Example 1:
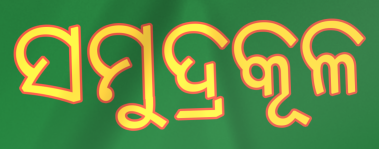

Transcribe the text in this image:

ସମୁଦ୍ରକୂଳ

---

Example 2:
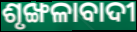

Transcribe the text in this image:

ଶୃଙ୍ଖଳାବାଦୀ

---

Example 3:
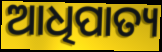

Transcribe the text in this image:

ଆଧିପାତ୍ୟ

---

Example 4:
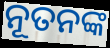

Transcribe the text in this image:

ନୂତନଙ୍କ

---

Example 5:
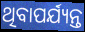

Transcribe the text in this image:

ଥିବାପର୍ଯ୍ୟନ୍ତ